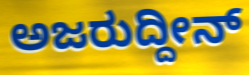
ಅಜರುದ್ದೀನ್